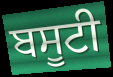
ਬਸੂਟੀ